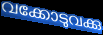
വക്കോടുവക്കു